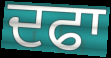
ਦਫਾ